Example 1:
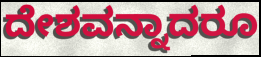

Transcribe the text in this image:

ದೇಶವನ್ನಾದರೂ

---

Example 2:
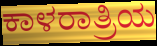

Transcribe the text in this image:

ಕಾಳರಾತ್ರಿಯ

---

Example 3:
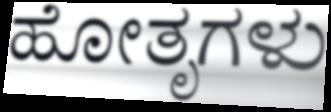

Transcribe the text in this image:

ಹೋತೃಗಳು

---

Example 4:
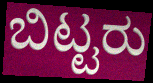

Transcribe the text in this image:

ಬಿಟ್ಟರು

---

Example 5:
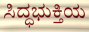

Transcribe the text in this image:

ಸಿದ್ಧಭುಕ್ತಿಯ